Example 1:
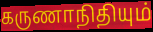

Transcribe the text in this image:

கருணாநிதியும்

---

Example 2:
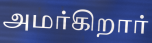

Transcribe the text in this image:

அமர்கிறார்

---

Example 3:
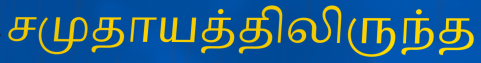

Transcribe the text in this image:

சமுதாயத்திலிருந்த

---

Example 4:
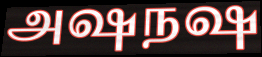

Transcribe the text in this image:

அஷநஷ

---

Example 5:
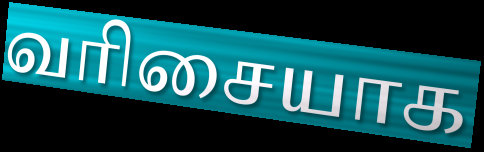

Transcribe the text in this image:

வரிசையாக